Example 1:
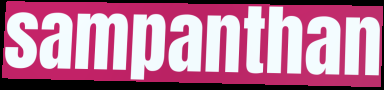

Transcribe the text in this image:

sampanthan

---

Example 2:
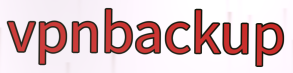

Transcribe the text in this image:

vpnbackup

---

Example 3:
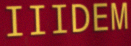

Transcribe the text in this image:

IIIDEM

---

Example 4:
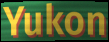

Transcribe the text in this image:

Yukon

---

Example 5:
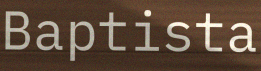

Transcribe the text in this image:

Baptista